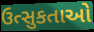
ઉત્સુકતાઓ